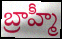
బ్రాహ్మీ